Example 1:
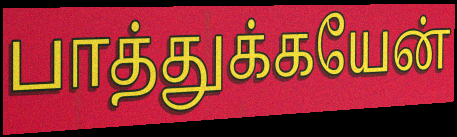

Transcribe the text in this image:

பாத்துக்கயேன்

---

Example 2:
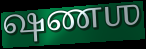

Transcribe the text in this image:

ஷணஶ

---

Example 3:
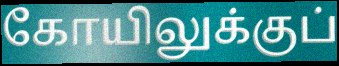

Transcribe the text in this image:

கோயிலுக்குப்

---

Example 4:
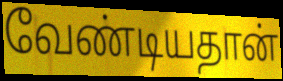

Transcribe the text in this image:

வேண்டியதான்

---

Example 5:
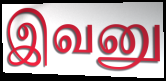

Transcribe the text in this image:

இவனு